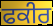
ਫਕੀਰ